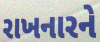
રાખનારને